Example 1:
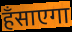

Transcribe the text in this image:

हँसाएगा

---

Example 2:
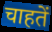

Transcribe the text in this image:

चाहतें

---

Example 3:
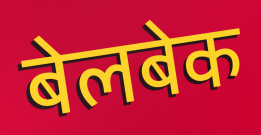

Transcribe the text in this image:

बेलबेक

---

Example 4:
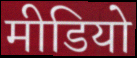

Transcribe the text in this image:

मीडियो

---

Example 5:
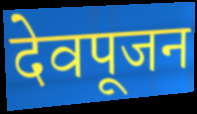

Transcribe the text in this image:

देवपूजन